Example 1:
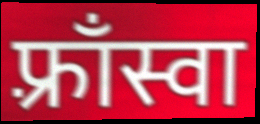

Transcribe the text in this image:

फ़्राँस्वा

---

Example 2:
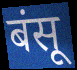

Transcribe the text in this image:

बंसू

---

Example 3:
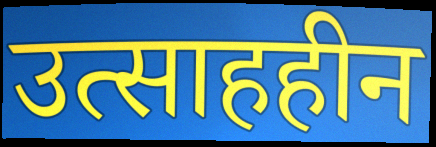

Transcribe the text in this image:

उत्साहहीन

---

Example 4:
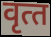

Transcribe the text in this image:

वृत्‍त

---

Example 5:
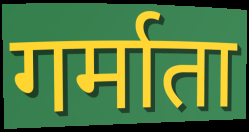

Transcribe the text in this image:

गर्माता